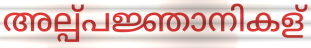
അല്പ്പജ്ഞാനികള്